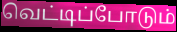
வெட்டிப்போடும்